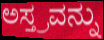
ಅಸ್ತ್ರವನ್ನು